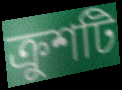
ক্রুশটি